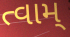
ત્વામ્